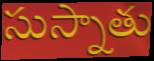
సుస్నాతు